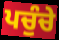
ਪਚੁੰਚੇ